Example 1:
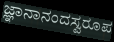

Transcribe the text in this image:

ಜ್ಞಾನಾನಂದಸ್ವರೂಪ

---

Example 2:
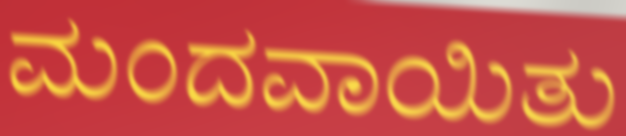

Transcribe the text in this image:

ಮಂದವಾಯಿತು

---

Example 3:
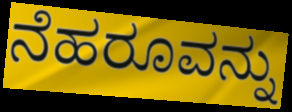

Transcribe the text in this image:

ನೆಹರೂವನ್ನು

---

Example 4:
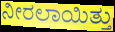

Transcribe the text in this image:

ನೀರಲಾಯಿತ್ತು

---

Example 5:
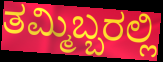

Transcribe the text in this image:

ತಮ್ಮಿಬ್ಬರಲ್ಲಿ